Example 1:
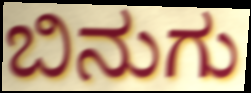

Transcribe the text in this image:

ಬಿನುಗು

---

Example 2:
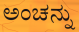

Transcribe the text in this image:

ಅಂಚನ್ನು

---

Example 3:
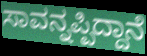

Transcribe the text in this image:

ಸಾವನ್ನಪ್ಪಿದ್ದಾನೆ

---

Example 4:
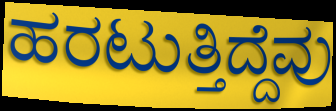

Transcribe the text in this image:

ಹರಟುತ್ತಿದ್ದೆವು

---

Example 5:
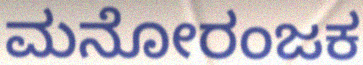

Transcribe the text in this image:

ಮನೋರಂಜಕ